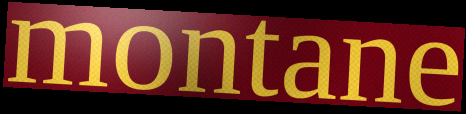
montane